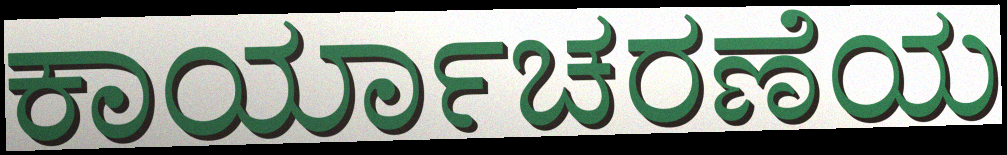
ಕಾರ್ಯಾಚರಣೆಯ